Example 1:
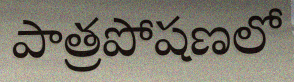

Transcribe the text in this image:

పాత్రపోషణలో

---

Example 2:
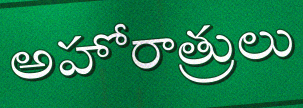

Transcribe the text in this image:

అహోరాత్రులు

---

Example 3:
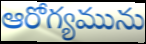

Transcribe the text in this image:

ఆరోగ్యమును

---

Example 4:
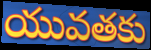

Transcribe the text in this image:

యువతకు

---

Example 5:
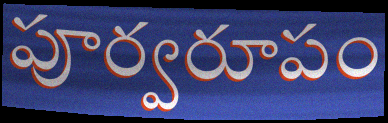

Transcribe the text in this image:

పూర్వరూపం